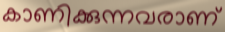
കാണിക്കുന്നവരാണ്